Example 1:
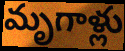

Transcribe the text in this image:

మృగాళ్లు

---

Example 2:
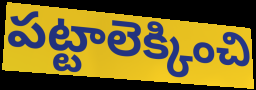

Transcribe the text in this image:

పట్టాలెక్కించి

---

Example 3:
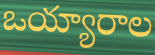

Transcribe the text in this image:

ఒయ్యారాల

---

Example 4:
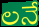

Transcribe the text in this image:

లనే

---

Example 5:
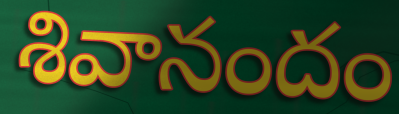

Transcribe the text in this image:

శివానందం